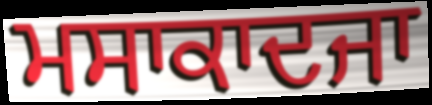
ਮਸਾਕਾਦਜਾ